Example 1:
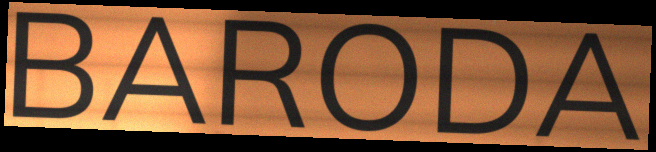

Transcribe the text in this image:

BARODA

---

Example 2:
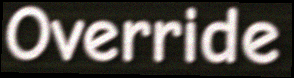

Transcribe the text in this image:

Override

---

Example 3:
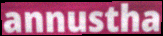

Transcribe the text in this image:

annustha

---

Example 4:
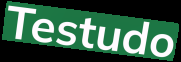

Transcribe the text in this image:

Testudo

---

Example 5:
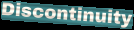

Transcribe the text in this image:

Discontinuity